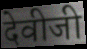
देवीजी